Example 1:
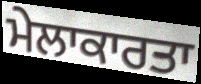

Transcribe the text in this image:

ਮੇਲਾਕਾਰਤਾ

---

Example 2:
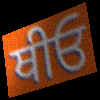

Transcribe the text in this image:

ਥੀਓ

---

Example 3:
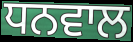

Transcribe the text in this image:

ਧਨਵਾਲ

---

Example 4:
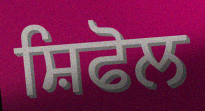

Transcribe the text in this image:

ਸ਼ਿਫੋਲ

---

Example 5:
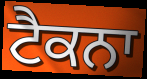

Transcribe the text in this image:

ਟੈਕਨਾ